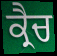
ਕ੍ਰੈਚ